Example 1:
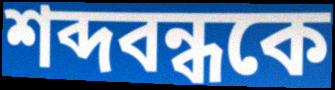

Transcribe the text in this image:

শব্দবন্ধকে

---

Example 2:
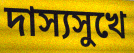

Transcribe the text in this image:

দাস্যসুখে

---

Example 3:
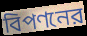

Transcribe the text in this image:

বিপণনের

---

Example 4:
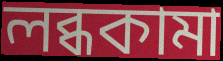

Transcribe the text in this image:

লব্ধকামা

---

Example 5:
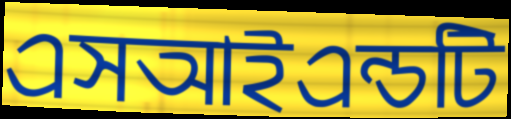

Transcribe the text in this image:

এসআইএন্ডটি